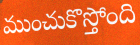
ముంచుకొస్తోంది